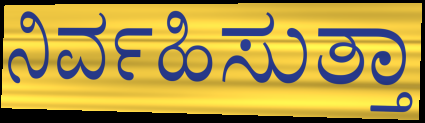
ನಿರ್ವಹಿಸುತ್ತಾ